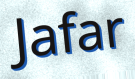
Jafar